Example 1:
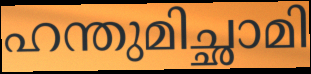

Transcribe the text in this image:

ഹന്തുമിച്ഛാമി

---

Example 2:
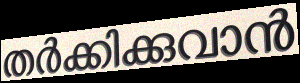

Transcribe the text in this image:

തർക്കിക്കുവാൻ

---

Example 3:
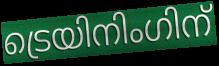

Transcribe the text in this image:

ട്രെയിനിംഗിന്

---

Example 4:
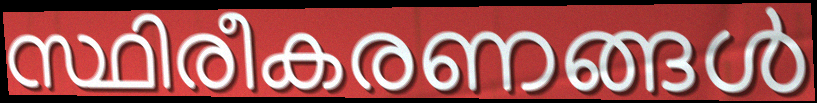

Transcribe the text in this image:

സ്ഥിരീകരണങ്ങൾ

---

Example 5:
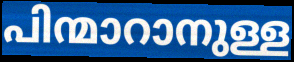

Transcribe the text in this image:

പിന്മാറാനുള്ള